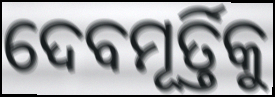
ଦେବମୂର୍ତ୍ତିକୁ